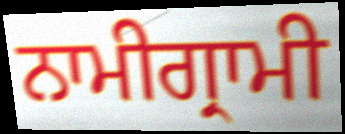
ਨਾਮੀਗ੍ਰਾਮੀ